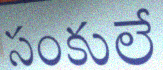
సంకులే